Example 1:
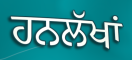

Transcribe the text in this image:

ਹਨਲੱਖਾਂ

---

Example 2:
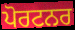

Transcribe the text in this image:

ਪੋਰਟਨਰ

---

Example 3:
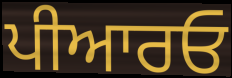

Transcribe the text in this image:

ਪੀਆਰਓ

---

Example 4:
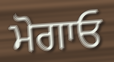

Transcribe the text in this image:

ਮੋਗਾਓ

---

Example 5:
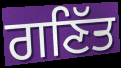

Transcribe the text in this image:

ਗਣਿੱਤ